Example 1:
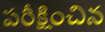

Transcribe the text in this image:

పరీక్షించిన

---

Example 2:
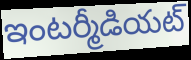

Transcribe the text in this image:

ఇంటర్మీడియట్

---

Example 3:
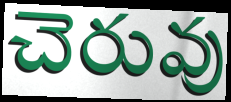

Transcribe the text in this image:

చెరువు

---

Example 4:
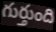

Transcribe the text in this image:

గుర్తుంది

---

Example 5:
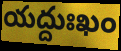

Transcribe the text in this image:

యద్దుఃఖం